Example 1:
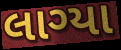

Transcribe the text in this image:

લાગ્યા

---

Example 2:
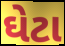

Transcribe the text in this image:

ઘેટા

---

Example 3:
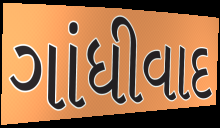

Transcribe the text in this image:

ગાંધીવાદ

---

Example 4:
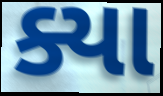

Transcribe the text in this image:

ક્યા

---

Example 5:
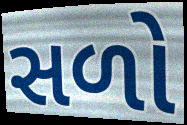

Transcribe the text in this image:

સળો